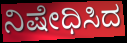
ನಿಷೇಧಿಸಿದ